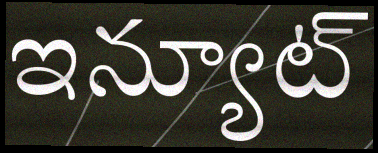
ఇన్యూట్